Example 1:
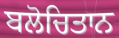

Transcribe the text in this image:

ਬਲੋਚਿਤਾਨ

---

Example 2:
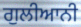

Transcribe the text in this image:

ਗੁਲੀਆਨੀ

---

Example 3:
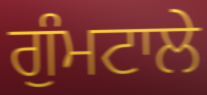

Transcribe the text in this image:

ਗੁੰਮਟਾਲੇ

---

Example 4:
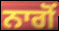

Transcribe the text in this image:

ਨਾਗੋਂ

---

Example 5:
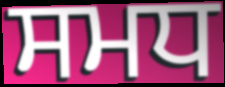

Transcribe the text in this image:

ਸਮਧ